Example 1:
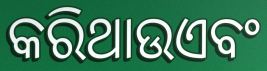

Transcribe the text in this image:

କରିଥାଉଏବଂ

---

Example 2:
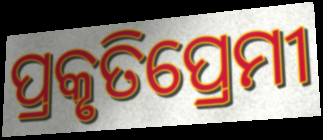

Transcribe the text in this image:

ପ୍ରକୃତିପ୍ରେମୀ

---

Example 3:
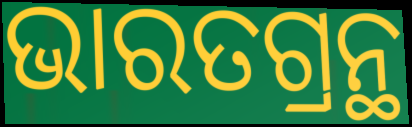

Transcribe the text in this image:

ଭାରତଗ୍ରନ୍ଥ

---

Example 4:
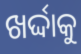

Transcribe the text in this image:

ଖର୍ଦ୍ଦାକୁ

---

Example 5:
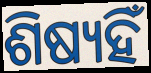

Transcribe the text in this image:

ଶିଷ୍ୟହିଁ